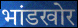
भांडखोर